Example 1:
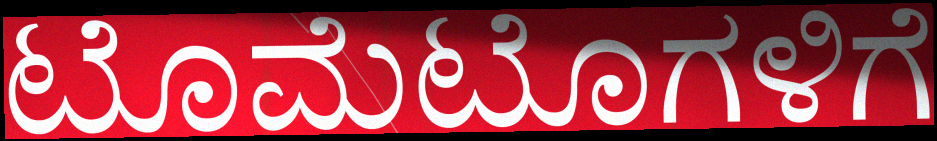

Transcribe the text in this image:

ಟೊಮೆಟೊಗಳಿಗೆ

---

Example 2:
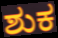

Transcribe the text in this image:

ಶುಕ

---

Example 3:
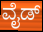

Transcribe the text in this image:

ವೈಡ್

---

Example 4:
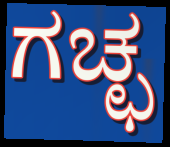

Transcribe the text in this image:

ಗಚ್ಛ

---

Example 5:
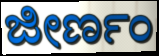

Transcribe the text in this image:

ಜೀರ್ಣಂ